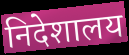
निदेशालय